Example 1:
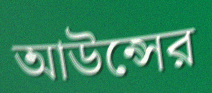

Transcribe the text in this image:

আউন্সের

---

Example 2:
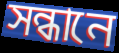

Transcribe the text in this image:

সন্ধানে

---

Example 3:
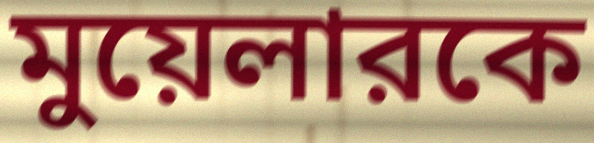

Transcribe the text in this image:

মুয়েলারকে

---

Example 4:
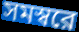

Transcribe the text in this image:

সমস্বরে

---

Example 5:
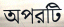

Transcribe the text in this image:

অপরটি